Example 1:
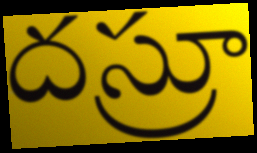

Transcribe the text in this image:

దస్రూ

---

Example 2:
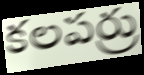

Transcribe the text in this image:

కలపర్రు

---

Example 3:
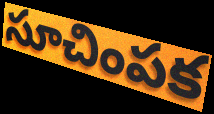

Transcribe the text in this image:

సూచింపక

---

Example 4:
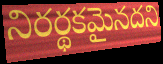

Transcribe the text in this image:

నిరర్థకమైనదని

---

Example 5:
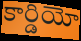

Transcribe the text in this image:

కార్డియో